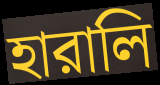
হারালি